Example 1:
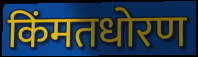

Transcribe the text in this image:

किंमतधोरण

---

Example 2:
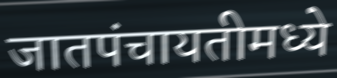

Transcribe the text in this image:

जातपंचायतीमध्ये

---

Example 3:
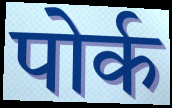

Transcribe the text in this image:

पोर्क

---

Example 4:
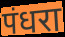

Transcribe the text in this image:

पंधरा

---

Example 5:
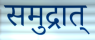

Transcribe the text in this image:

समुद्रात्